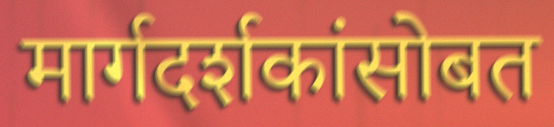
मार्गदर्शकांसोबत